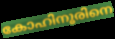
കോഹിനൂരിനെ